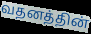
வதனத்தின்